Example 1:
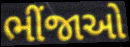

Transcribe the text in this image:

ભીંજાઓ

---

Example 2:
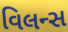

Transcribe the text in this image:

વિલન્સ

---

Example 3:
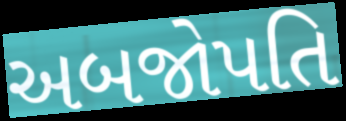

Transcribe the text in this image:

અબજોપતિ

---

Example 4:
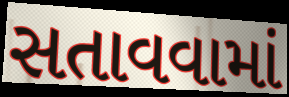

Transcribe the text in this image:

સતાવવામાં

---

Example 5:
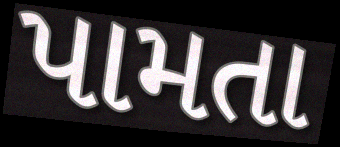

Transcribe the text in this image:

પામતા